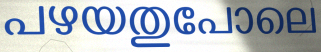
പഴയതുപോലെ